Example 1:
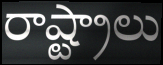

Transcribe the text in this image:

రాష్ట్రాలు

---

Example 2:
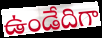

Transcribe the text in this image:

ఉండేదిగా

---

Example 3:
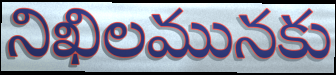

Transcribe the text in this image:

నిఖిలమునకు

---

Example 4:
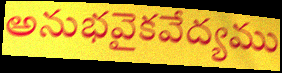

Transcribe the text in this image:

అనుభవైకవేద్యము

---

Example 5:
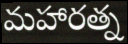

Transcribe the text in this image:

మహారత్న